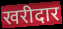
खरीदार